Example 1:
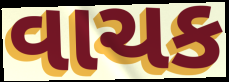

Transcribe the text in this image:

વાચક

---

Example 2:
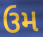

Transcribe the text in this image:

ઉમ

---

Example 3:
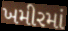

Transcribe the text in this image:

ખમીરમાં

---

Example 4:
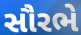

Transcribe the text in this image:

સૌરભે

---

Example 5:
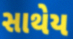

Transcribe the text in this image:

સાથેય